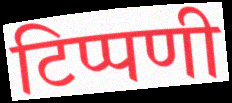
टिप्‍पणी